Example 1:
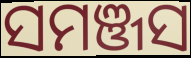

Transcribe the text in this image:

ସମଞ୍ଜସ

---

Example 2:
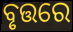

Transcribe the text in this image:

ବୃତ୍ତରେ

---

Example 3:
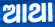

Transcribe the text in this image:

ଆଥା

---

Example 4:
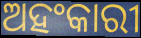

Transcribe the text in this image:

ଅହଂକାରୀ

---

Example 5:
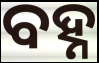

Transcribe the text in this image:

ବହ୍ନ